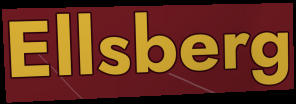
Ellsberg